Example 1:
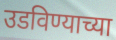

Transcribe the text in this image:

उडविण्याच्या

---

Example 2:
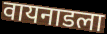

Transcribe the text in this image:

वायनाडला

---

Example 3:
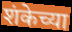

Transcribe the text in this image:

शंकेच्या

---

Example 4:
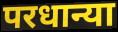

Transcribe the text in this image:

परधान्या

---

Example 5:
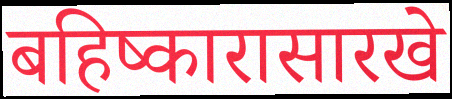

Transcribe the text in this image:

बहिष्कारासारखे